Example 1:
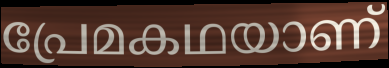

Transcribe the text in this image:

പ്രേമകഥയാണ്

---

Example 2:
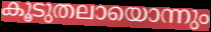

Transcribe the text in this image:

കൂടുതലായൊന്നും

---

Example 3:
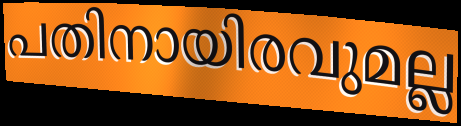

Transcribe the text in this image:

പതിനായിരവുമല്ല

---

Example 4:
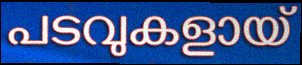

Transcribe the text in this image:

പടവുകളായ്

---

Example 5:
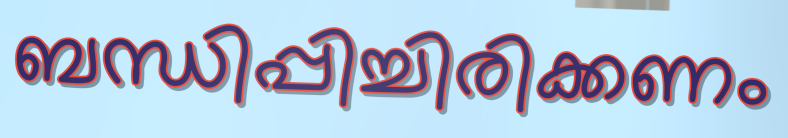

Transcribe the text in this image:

ബന്ധിപ്പിച്ചിരിക്കണം